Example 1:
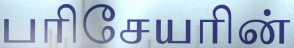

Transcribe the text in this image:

பரிசேயரின்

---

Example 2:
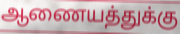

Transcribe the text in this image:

ஆணையத்துக்கு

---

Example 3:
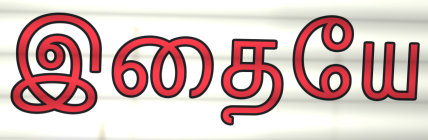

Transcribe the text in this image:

இதையே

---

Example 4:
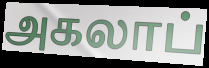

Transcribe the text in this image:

அகலாப்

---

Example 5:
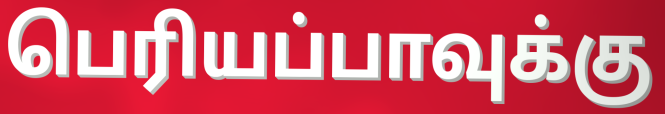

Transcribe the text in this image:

பெரியப்பாவுக்கு